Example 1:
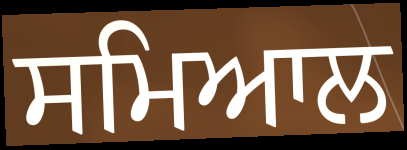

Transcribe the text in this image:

ਸਮਿਆਲ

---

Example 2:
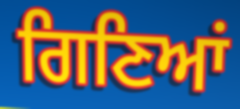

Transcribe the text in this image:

ਗਿਣਿਆਂ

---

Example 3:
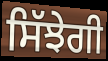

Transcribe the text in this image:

ਸਿੱਝੇਗੀ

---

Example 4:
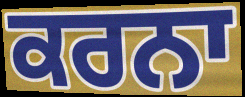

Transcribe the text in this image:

ਕਰਨਾ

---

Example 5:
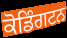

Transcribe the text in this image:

ਕੋਡਿੰਗਟਨ